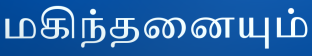
மகிந்தனையும்